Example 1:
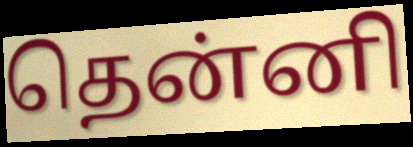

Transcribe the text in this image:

தென்னி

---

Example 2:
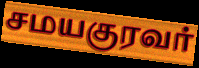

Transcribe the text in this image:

சமயகுரவர்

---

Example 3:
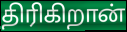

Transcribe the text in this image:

திரிகிறான்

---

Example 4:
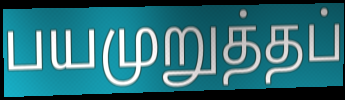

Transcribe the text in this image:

பயமுறுத்தப்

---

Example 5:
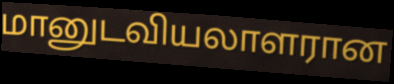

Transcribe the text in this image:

மானுடவியலாளரான